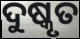
ଦୁଷ୍କୃତ